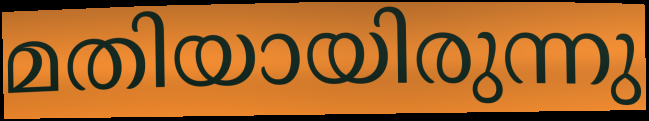
മതിയായിരുന്നു